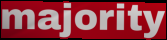
majority